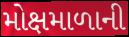
મોક્ષમાળાની